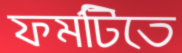
ফর্মটিতে